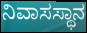
ನಿವಾಸಸ್ಥಾನ